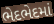
ભેદભેદમાં